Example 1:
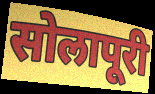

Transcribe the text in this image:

सोलापूरी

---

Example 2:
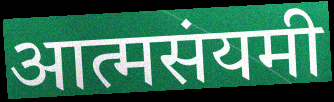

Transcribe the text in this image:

आत्मसंयमी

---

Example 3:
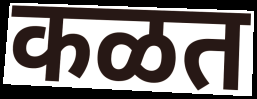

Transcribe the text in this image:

कळत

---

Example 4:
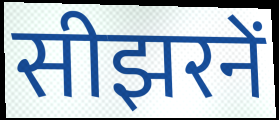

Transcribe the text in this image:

सीझरनें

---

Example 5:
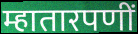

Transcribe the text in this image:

म्हातारपणीं